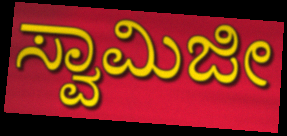
ಸ್ವಾಮಿಜೀ